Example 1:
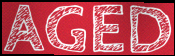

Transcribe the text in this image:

AGED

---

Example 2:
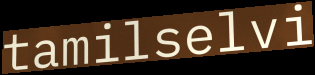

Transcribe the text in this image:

tamilselvi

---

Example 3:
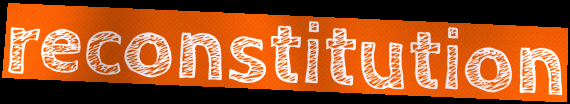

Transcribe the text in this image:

reconstitution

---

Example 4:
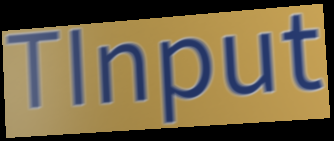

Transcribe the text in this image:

TInput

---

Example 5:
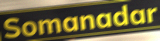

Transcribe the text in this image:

Somanadar